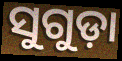
ସୁଗୁଡ଼ା